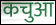
कचुआ